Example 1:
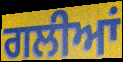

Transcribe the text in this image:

ਗਲੀਆਂ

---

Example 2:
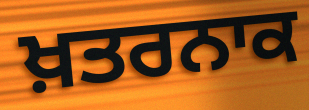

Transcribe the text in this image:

ਖ਼ਤਰਨਾਕ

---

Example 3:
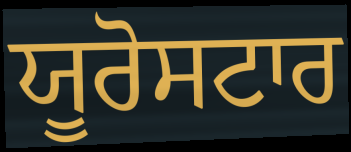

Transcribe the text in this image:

ਯੂਰੋਸਟਾਰ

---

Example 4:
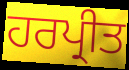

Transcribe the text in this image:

ਹਰਪ੍ਰੀਤ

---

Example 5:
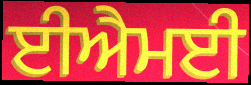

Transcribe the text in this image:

ਈਐਮਈ